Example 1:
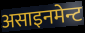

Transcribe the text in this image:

असाइनमेन्ट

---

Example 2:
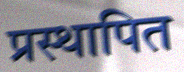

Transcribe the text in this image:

प्रस्थापित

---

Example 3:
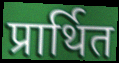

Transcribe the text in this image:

प्रार्थित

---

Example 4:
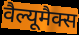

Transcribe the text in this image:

वैल्यूमैक्स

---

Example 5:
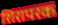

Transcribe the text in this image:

शिरापरक